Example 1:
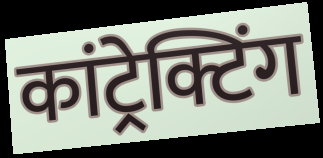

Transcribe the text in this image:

कांट्रेक्टिंग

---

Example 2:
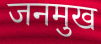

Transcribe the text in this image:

जनमुख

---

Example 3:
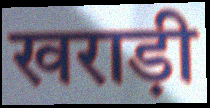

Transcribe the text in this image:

खराड़ी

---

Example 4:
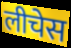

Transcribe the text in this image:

लीचेस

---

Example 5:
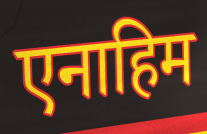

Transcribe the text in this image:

एनाहिम